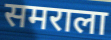
समराला